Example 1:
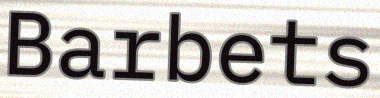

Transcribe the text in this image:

Barbets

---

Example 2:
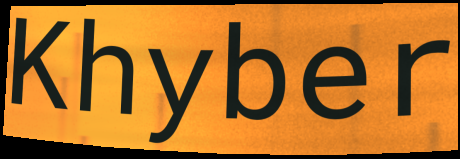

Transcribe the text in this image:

Khyber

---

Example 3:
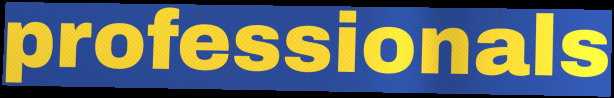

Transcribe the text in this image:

professionals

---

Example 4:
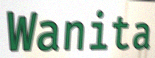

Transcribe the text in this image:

Wanita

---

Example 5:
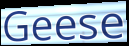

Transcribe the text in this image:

Geese